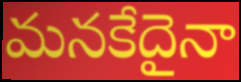
మనకేదైనా